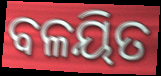
ବଳୟିତ